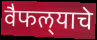
वैफल्याचे